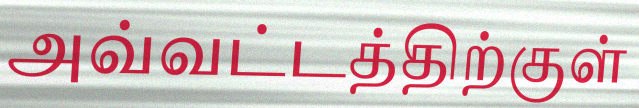
அவ்வட்டத்திற்குள்